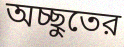
অচ্ছুতের